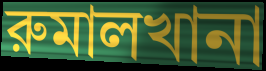
রুমালখানা